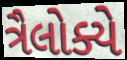
ત્રૈલોક્યે